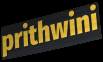
prithwini